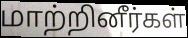
மாற்றினீர்கள்